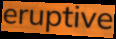
eruptive